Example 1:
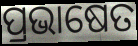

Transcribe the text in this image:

ପ୍ରଭାଷେତ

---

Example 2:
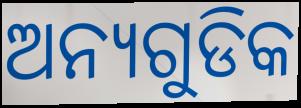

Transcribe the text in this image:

ଅନ୍ୟଗୁଡିକ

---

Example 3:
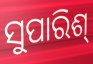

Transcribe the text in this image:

ସୁପାରିଶ୍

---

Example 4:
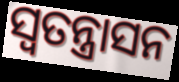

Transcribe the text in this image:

ସ୍ଵତନ୍ତ୍ରାସନ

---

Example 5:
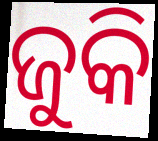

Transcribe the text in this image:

ଜୁକି